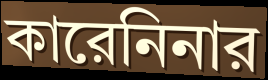
কারেনিনার